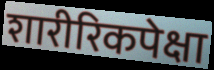
शारीरिकपेक्षा